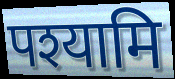
पश्यामि